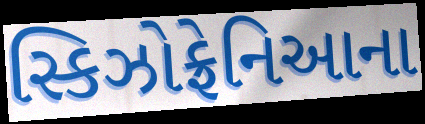
સ્કિઝોફ્રેનિઆના